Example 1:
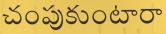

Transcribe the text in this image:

చంపుకుంటారా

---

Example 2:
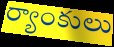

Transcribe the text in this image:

ర్యాంకులు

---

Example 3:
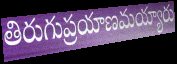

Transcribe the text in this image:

తిరుగుప్రయాణమయ్యారు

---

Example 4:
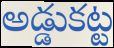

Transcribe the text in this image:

అడ్డుకట్ట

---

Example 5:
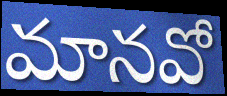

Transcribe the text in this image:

మానవో